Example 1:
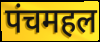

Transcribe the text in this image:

पंचमहल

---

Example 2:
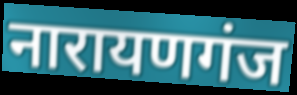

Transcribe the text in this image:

नारायणगंज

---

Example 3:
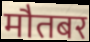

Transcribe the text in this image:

मौतबर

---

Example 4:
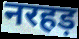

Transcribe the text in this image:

नरहड़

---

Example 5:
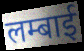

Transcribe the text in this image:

लम्बाई